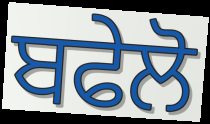
ਬਫੇਲੋ